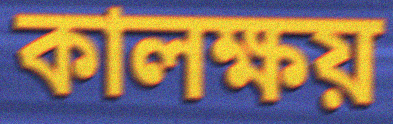
কালক্ষয়